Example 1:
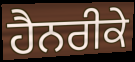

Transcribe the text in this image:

ਹੈਨਰੀਕੇ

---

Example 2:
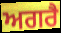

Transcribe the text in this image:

ਅਗਰੈ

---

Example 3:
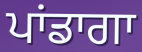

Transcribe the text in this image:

ਪਾਂਡਾਗਾ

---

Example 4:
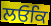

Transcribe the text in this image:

ਲਓਕਿ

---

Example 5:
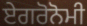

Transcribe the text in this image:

ਏਗਰੋਨੋਮੀ